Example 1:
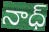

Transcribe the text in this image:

నాధ్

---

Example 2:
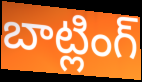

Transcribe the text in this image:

బాట్లింగ్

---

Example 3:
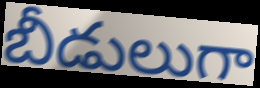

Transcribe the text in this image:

బీడులుగా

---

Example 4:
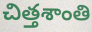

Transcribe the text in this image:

చిత్తశాంతి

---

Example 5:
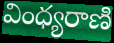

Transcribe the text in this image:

వింధ్యరాణి